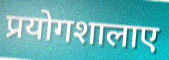
प्रयोगशालाए